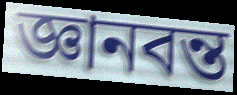
জ্ঞানবন্ত